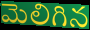
మెలిగిన